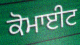
ਕੋਮਾਈਟ